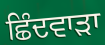
ਛਿੰਦਵਾੜਾ